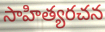
సాహిత్యరచన